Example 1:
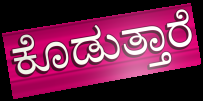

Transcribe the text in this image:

ಕೊಡುತ್ತಾರೆ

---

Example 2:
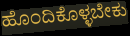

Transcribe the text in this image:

ಹೊಂದಿಕೊಳ್ಳಬೇಕು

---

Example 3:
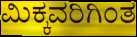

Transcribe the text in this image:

ಮಿಕ್ಕವರಿಗಿಂತ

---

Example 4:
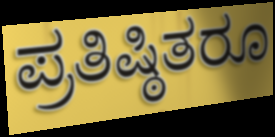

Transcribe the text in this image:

ಪ್ರತಿಷ್ಠಿತರೂ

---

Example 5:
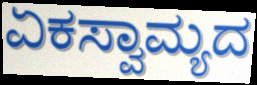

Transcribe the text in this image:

ಏಕಸ್ವಾಮ್ಯದ